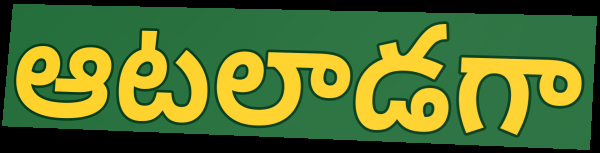
ఆటలాడగా